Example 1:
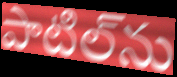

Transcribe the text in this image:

పాటిల్‌ను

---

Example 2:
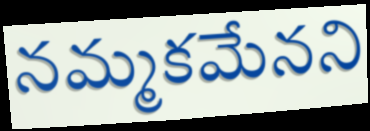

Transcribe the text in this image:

నమ్మకమేనని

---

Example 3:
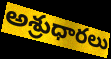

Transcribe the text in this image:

అశ్రుధారలు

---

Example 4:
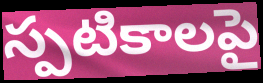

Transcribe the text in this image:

స్పటికాలపై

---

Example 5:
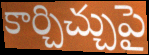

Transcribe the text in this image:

కార్చిచ్చుపై